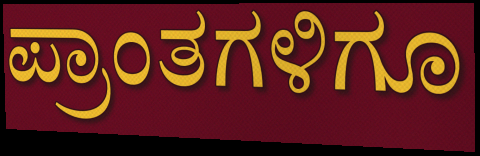
ಪ್ರಾಂತಗಳಿಗೂ